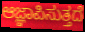
ಆಜ್ಞಾಪಿಸುತ್ತದೆ